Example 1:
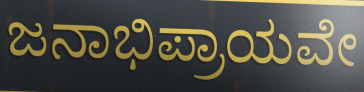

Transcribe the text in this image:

ಜನಾಭಿಪ್ರಾಯವೇ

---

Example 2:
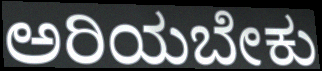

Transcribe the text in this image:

ಅರಿಯಬೇಕು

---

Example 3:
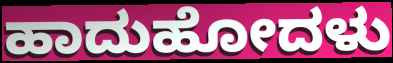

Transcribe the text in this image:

ಹಾದುಹೋದಳು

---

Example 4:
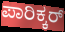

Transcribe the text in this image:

ಪಾರಿಕ್ಕರ್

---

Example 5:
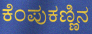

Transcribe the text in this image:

ಕೆಂಪುಕಣ್ಣಿನ